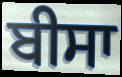
ਬੀਸਾ